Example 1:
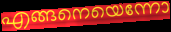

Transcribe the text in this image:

എങ്ങനെയെന്നോ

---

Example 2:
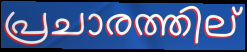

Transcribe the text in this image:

പ്രചാരത്തില്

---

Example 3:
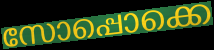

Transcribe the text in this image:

സോപ്പൊക്കെ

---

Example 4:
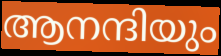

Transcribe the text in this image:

ആനന്ദിയും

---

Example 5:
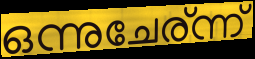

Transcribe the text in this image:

ഒന്നുചേര്ന്ന്